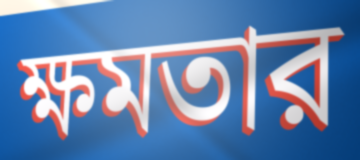
ক্ষমতার